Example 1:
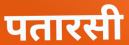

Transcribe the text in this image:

पतारसी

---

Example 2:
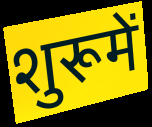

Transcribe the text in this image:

शुरूमें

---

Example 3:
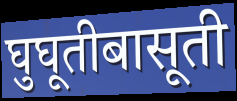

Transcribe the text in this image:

घुघूतीबासूती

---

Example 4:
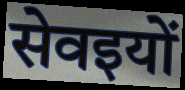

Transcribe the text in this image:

सेवइयों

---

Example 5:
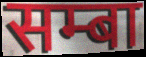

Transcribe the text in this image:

सम्बा